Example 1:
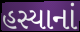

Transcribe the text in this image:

હસ્યાનાં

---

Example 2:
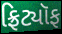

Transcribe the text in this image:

ફ્રિટ્યૉફ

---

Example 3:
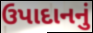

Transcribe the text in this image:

ઉપાદાનનું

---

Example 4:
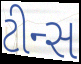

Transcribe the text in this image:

ટીન્સ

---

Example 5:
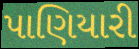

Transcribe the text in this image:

પાણિયારી